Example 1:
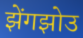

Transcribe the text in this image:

झेंगझोउ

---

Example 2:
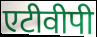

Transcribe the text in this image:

एटीवीपी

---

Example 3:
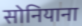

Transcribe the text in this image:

सोनियाना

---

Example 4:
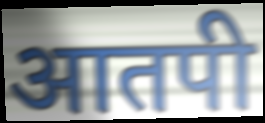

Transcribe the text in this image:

आतपी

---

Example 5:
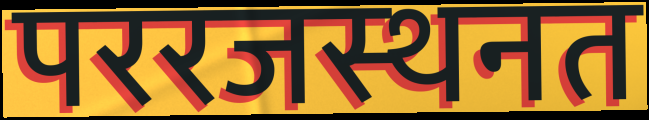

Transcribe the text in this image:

पररजस्थनत